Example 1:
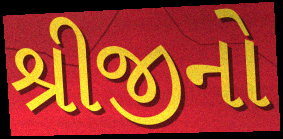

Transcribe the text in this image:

શ્રીજીનો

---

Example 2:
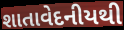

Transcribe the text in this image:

શાતાવેદનીયથી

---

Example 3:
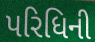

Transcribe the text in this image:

પરિધિની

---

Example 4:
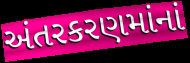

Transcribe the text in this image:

અંતરકરણમાંનાં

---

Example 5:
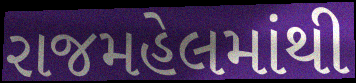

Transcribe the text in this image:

રાજમહેલમાંથી